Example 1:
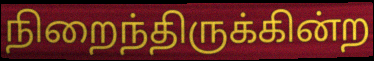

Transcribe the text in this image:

நிறைந்திருக்கின்ற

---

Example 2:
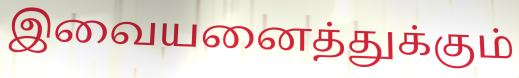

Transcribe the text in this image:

இவையனைத்துக்கும்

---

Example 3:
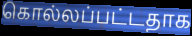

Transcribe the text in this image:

கொல்லப்பட்டதாக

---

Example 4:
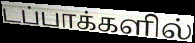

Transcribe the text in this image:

டப்பாக்களில்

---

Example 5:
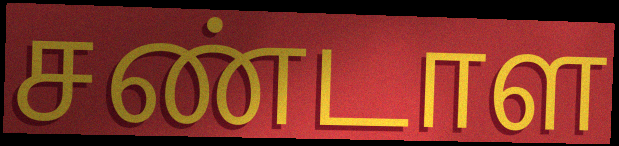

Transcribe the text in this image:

சண்டாள